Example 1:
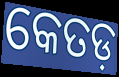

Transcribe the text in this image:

କେତଡ଼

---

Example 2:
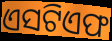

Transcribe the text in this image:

ଏସଟିଏଫ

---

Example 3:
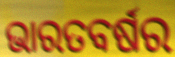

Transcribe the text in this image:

ଭାରତବର୍ଷର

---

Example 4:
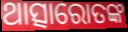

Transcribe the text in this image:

ଥାତ୍ସାରୋତଙ୍କ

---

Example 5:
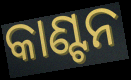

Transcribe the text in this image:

କାଣ୍ଟନ